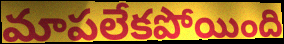
మాపలేకపోయింది